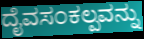
ದೈವಸಂಕಲ್ಪವನ್ನು